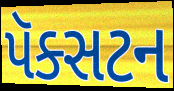
પૅક્સટન